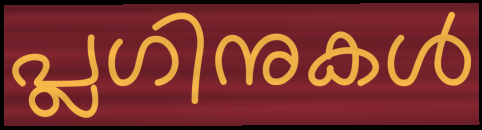
പ്ലഗിനുകൾ